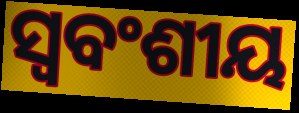
ସ୍ଵବଂଶୀୟ